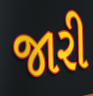
જારી